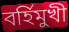
বৰ্হিমুখী